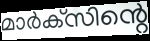
മാർക്‌സിന്റെ